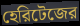
হেরিটেজের